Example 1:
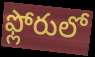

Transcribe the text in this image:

ఫ్లోరులో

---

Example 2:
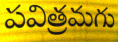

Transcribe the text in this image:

పవిత్రమగు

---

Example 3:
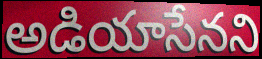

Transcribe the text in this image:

అడియాసేనని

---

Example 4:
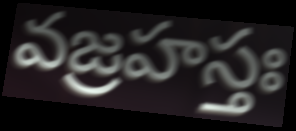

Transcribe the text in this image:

వజ్రహస్తః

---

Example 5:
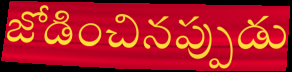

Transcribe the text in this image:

జోడించినప్పుడు